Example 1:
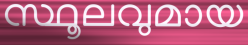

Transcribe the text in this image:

സ്ഥൂലവുമായ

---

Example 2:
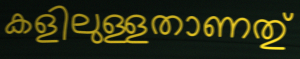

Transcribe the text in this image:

കളിലുള്ളതാണതു്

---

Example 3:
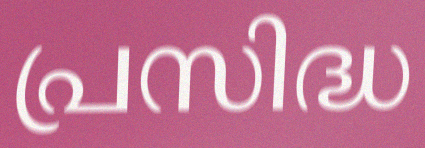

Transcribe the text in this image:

പ്രസിദ്ധ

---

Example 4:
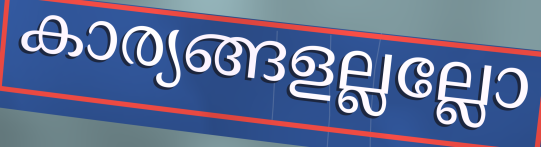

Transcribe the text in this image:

കാര്യങ്ങളല്ലല്ലോ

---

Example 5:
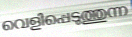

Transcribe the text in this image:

വെളിപ്പെടുത്തുന്ന